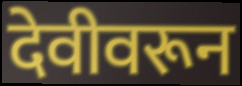
देवीवरून